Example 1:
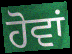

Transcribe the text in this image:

ਹੋਵਾਂ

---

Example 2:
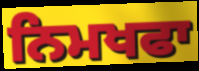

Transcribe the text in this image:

ਨਿਮਖਫਾ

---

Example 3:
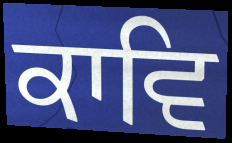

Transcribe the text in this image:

ਕਾਵਿ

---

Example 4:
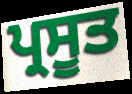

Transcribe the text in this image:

ਪ੍ਰਸੂਤ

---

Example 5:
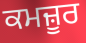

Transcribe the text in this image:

ਕਮਜ਼ੂਰ